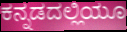
ಕನ್ನಡದಲ್ಲಿಯೂ